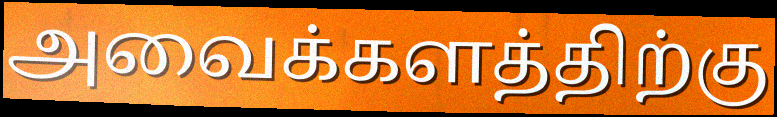
அவைக்களத்திற்கு